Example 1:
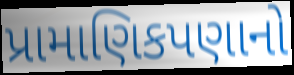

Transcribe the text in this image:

પ્રામાણિકપણાનો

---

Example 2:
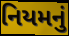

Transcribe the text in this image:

નિયમનું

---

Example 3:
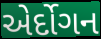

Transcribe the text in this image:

એર્દોગન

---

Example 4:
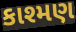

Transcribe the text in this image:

કાશ્મણ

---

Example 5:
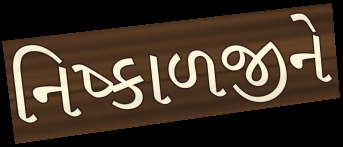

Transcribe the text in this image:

નિષ્કાળજીને